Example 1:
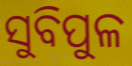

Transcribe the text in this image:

ସୁବିପୁଳ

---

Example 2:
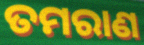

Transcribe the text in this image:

ତମରାଣ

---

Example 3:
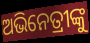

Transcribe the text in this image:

ଅଭିନେତ୍ରୀଙ୍କୁ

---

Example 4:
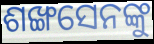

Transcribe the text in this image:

ଶଙ୍ଖସେନଙ୍କୁ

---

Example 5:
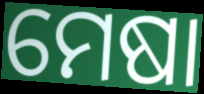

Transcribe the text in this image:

ମେଷା